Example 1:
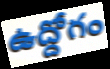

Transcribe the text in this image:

ఉద్దోగం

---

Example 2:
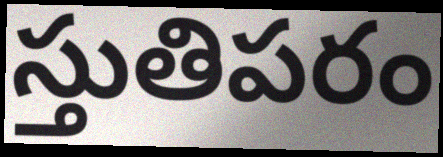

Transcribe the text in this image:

స్తుతిపరం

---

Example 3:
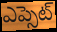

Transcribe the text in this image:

ఎప్సెట్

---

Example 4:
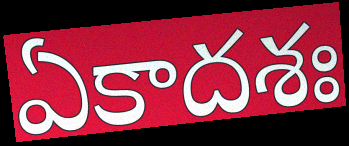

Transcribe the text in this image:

ఏకాదశః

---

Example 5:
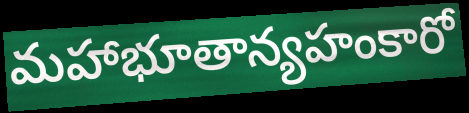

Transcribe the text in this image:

మహాభూతాన్యహంకారో